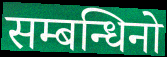
सम्बन्धिनो